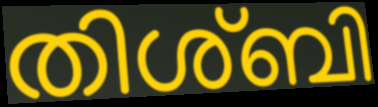
തിശ്ബി